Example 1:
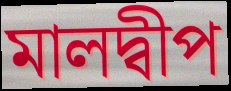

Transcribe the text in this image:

মালদ্বীপ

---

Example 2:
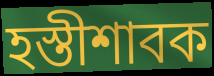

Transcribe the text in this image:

হস্তীশাবক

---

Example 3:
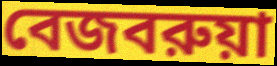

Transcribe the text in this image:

বেজবরুয়া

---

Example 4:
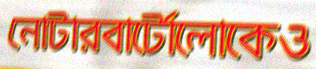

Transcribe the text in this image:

নোটারবার্টোলোকেও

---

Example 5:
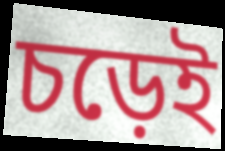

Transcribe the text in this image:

চড়েই